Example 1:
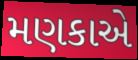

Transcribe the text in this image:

મણકાએ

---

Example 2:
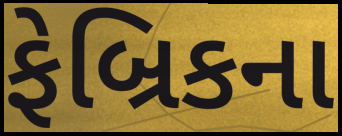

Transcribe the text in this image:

ફેબ્રિકના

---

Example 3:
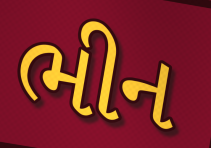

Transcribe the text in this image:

ભીન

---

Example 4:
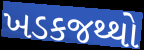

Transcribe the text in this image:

ખડકજથ્થો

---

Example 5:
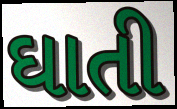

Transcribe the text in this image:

ઘાતી